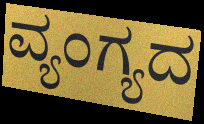
ವ್ಯಂಗ್ಯದ